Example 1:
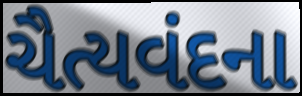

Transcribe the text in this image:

ચૈત્યવંદના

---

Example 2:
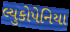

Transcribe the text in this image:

લ્યુકોપેનિયા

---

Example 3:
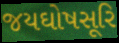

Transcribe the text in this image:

જયઘોષસૂરિ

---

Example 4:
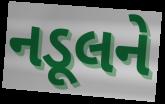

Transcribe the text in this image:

નડૂલને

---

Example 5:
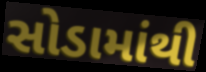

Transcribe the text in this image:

સોડામાંથી